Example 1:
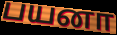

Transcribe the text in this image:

பயனா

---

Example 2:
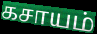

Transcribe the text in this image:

கசாயம்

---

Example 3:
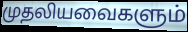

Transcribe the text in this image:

முதலியவைகளும்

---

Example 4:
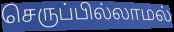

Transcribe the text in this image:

செருப்பில்லாமல்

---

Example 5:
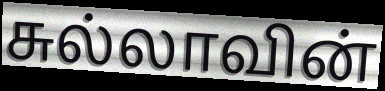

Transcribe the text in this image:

சுல்லாவின்